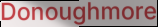
Donoughmore